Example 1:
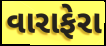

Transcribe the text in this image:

વારાફેરા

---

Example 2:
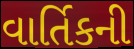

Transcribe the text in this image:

વાર્તિકની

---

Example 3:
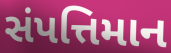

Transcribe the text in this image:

સંપત્તિમાન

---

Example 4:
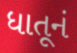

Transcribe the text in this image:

ધાતૂનં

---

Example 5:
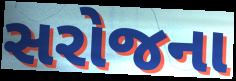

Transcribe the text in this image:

સરોજના